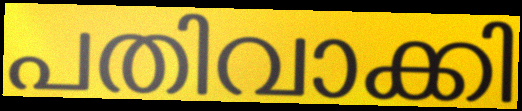
പതിവാക്കി